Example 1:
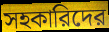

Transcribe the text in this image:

সহকারিদের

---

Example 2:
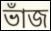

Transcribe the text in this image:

ভাঁজ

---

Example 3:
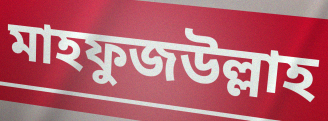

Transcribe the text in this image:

মাহফুজউল্লাহ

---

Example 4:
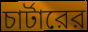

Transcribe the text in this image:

চার্টারের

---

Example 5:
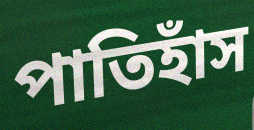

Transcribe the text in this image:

পাতিহাঁস